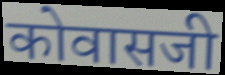
कोवासजी